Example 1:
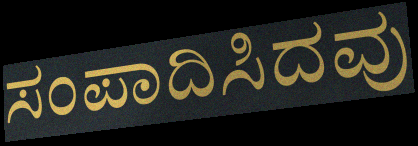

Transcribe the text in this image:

ಸಂಪಾದಿಸಿದವು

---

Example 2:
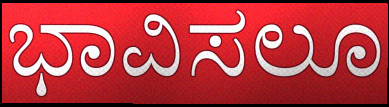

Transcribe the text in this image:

ಭಾವಿಸಲೂ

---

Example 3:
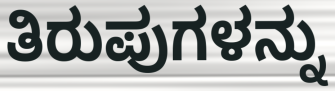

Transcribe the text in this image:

ತಿರುಪುಗಳನ್ನು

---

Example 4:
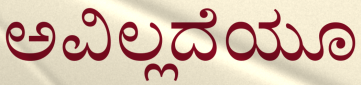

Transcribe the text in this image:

ಅವಿಲ್ಲದೆಯೂ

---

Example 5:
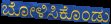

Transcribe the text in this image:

ಬೋಳಿಸಿಕೊಂಡು